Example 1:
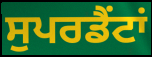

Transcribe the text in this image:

ਸੁਪਰਡੈਂਟਾਂ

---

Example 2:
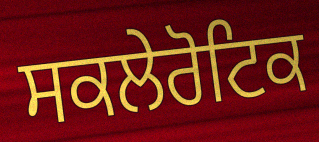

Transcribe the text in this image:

ਸਕਲੇਰੋਟਿਕ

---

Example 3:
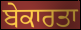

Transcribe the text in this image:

ਬੇਕਾਰਤਾ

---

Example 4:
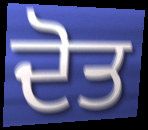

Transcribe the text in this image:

ਦੋਤ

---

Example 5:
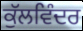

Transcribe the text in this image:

ਕੁੱਲਵਿੰਦਰ